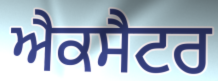
ਐਕਸੈਟਰ